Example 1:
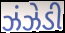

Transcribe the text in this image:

ઝંઝેડી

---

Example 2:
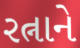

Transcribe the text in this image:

રત્નાને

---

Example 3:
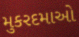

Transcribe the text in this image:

મુકરદમાઓ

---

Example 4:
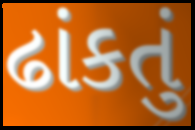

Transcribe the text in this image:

ઢાંકતું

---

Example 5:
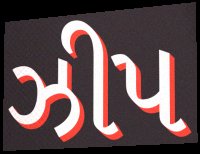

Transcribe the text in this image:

ઝીપ